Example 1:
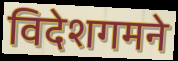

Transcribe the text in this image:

विदेशगमने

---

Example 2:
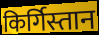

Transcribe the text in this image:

किर्गिस्‍तान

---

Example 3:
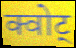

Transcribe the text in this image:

क्वोट्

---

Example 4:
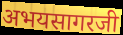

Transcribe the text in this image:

अभयसागरजी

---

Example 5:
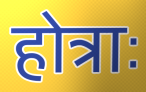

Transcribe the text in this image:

होत्राः